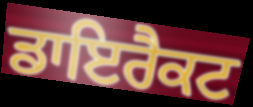
ਡਾਇਰੈਕਟ